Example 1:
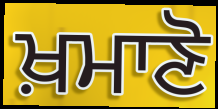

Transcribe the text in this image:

ਖ਼ਮਾਣੋ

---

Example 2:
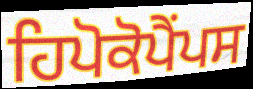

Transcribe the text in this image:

ਹਿਪੋਕੋਪੈਂਪਸ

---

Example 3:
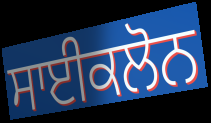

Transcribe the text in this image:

ਸਾਈਕਲੋਨ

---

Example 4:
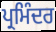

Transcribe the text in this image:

ਪ੍ਰਮਿੰਦਰ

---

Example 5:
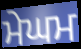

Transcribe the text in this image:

ਮੇਘਮ